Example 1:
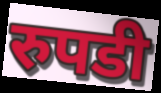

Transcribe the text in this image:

रुपडी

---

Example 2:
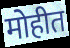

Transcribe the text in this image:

मोहीत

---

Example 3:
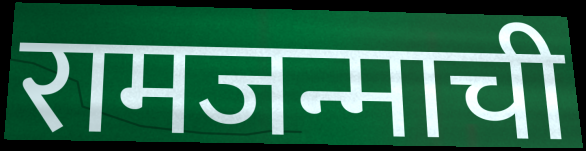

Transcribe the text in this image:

रामजन्माची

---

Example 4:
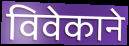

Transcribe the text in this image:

विवेकाने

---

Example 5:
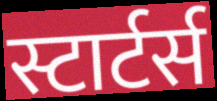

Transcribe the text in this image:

स्टार्टर्स